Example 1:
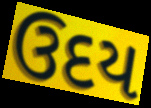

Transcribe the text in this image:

ઉદય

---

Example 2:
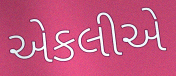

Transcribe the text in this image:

એકલીએ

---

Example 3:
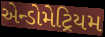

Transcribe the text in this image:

એન્ડોમેટ્રિયમ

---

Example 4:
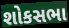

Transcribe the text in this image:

શોકસભા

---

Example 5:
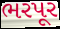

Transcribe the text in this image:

ભરપૂર